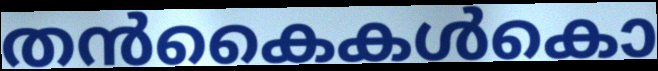
തൻകൈകൾകൊ